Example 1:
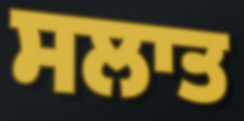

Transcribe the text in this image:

ਸਲਾਤ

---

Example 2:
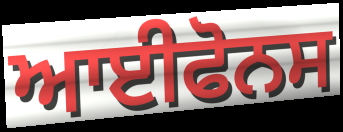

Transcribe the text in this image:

ਆਈਫੋਨਸ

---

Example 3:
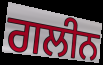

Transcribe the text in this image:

ਗਲੀਨ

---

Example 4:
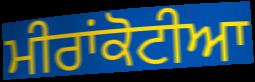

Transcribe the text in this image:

ਮੀਰਾਂਕੋਟੀਆ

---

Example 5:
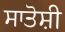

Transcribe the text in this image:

ਸਾਤੋਸ਼ੀ